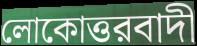
লোকোত্তরবাদী